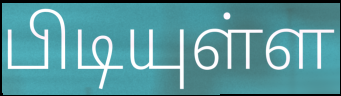
பிடியுள்ள